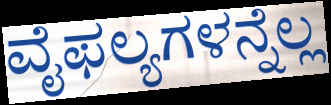
ವೈಫಲ್ಯಗಳನ್ನೆಲ್ಲ